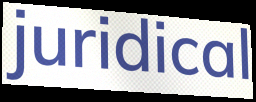
juridical